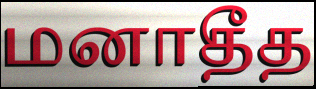
மனாதீத